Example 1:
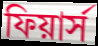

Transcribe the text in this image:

ফিয়ার্স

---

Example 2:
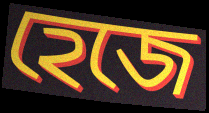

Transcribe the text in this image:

হেজে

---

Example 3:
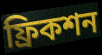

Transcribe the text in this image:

ফ্রিকশন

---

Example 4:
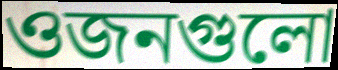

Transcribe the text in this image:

ওজনগুলো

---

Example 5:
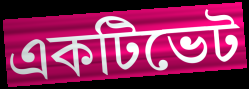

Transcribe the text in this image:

একটিভেট